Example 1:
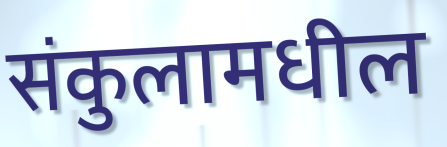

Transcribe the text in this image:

संकुलामधील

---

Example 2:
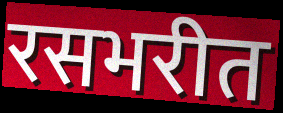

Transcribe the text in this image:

रसभरीत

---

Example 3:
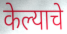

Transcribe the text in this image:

केल्याचे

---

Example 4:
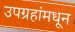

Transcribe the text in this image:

उपग्रहांमधून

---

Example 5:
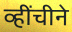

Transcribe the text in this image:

व्हींचीने